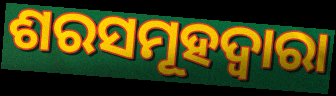
ଶରସମୂହଦ୍ୱାରା